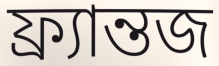
ফ্র্যান্তজ